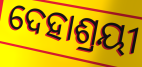
ଦେହାଶ୍ରୟୀ